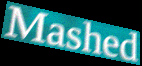
Mashed